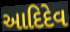
આદિદેવ